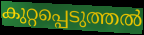
കുറ്റപ്പെടുത്തൽ